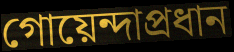
গোয়েন্দাপ্রধান